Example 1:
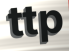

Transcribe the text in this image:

ttp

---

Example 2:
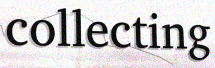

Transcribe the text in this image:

collecting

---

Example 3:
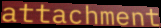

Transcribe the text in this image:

attachment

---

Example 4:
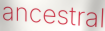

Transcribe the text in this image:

ancestral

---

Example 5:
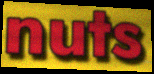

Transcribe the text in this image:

nuts